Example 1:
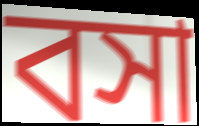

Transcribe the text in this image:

বসা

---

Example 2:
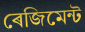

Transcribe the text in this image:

ৰেজিমেন্ট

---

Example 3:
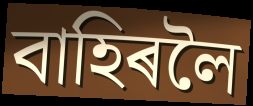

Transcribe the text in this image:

বাহিৰলৈ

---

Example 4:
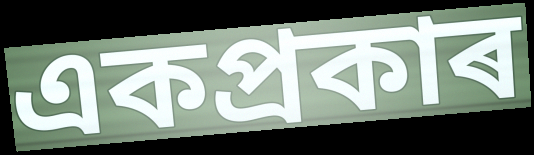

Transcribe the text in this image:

একপ্ৰকাৰ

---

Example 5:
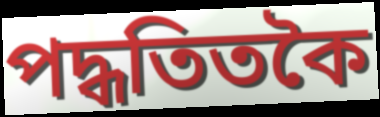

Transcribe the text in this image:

পদ্ধতিতকৈ